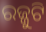
ରଜ୍ଜୁଟି